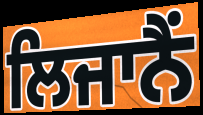
ਲਿਜਾਨੈਂ